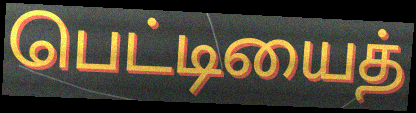
பெட்டியைத்